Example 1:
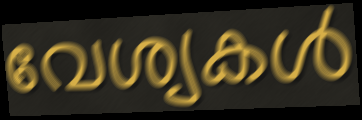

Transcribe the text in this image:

വേശ്യകൾ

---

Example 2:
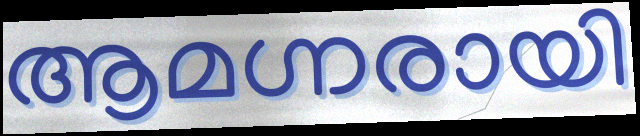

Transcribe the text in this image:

ആമഗ്നരായി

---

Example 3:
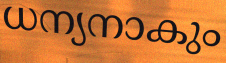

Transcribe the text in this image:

ധന്യനാകും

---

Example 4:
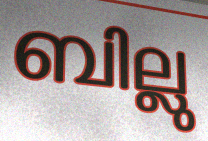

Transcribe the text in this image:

ബില്ലു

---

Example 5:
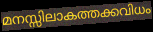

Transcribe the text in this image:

മനസ്സിലാകത്തക്കവിധം